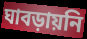
ঘাবড়ায়নি